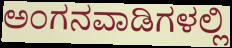
ಅಂಗನವಾಡಿಗಳಲ್ಲಿ